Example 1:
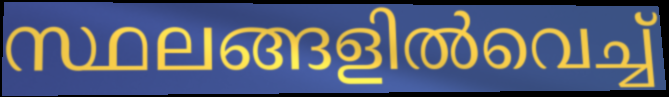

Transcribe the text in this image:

സ്ഥലങ്ങളിൽവെച്ച്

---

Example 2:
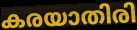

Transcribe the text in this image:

കരയാതിരി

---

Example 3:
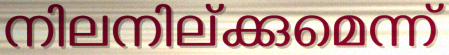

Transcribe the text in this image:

നിലനില്ക്കുമെന്ന്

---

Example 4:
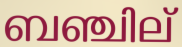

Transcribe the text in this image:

ബഞ്ചില്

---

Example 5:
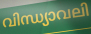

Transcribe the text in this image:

വിന്ധ്യാവലി